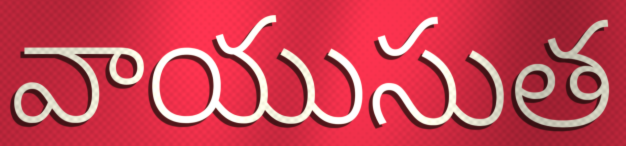
వాయుసుత